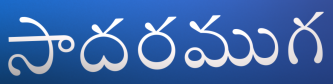
సాదరముగ